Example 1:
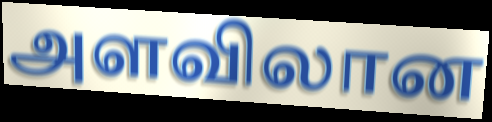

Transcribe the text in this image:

அளவிலான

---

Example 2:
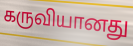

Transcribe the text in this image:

கருவியானது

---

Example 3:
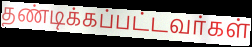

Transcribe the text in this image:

தண்டிக்கப்பட்டவர்கள்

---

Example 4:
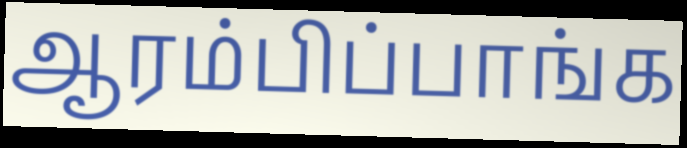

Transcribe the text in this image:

ஆரம்பிப்பாங்க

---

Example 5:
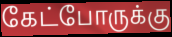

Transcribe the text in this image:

கேட்போருக்கு